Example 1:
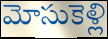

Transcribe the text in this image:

మోసుకెళ్లి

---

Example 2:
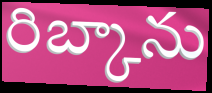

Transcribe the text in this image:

రిబ్కాను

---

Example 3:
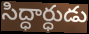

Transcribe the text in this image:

సిద్ధార్ధుడు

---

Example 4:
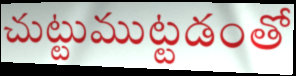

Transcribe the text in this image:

చుట్టుముట్టడంతో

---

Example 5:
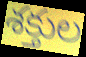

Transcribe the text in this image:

శక్తుల